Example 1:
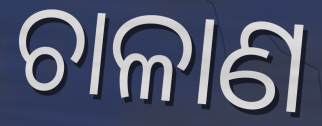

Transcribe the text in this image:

ଚାଳାଣ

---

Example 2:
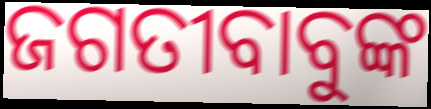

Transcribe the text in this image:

ଜଗତୀବାବୁଙ୍କ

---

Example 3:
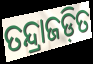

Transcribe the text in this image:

ତନ୍ଦ୍ରାଜଡ଼ିତ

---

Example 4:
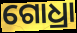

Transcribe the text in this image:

ଗୋଧ୍ରା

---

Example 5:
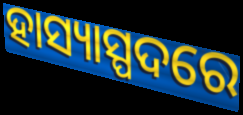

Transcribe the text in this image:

ହାସ୍ୟାସ୍ପଦରେ